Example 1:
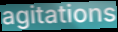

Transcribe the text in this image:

agitations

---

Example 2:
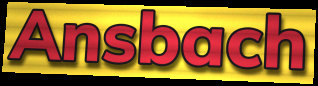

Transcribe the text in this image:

Ansbach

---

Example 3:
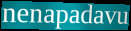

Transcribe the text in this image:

nenapadavu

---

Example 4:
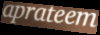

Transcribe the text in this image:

aprateem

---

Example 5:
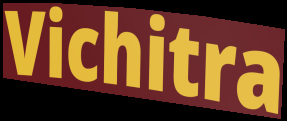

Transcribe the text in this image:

Vichitra